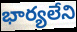
భార్యలేని